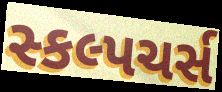
સ્કલ્પચર્સ